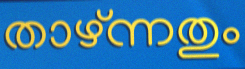
താഴ്ന്നതും